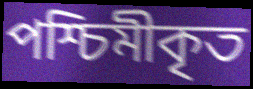
পশ্চিমীকৃত